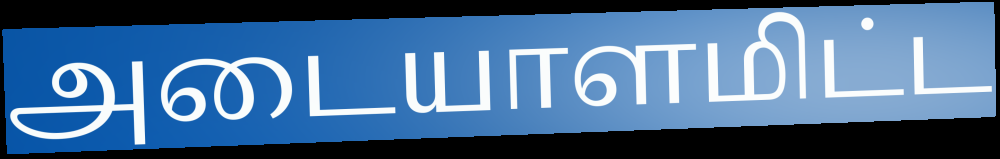
அடையாளமிட்ட